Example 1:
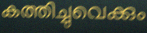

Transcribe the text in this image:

കത്തിച്ചുവെക്കും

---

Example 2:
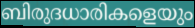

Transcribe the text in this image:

ബിരുദധാരികളെയും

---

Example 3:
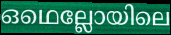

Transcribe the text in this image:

ഒഥെല്ലോയിലെ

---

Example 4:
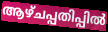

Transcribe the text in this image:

ആഴ്ചപ്പതിപ്പിൽ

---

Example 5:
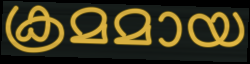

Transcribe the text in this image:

ക്രമമായ